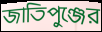
জাতিপুঞ্জের